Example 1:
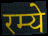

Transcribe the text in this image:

रम्ये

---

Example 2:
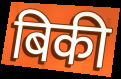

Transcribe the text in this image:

बिकी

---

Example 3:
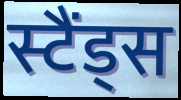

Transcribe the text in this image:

स्टैंड्स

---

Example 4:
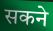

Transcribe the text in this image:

सकने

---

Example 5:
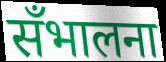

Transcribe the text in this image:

सँभालना